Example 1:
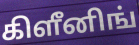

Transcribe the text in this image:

கிளீனிங்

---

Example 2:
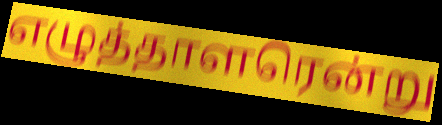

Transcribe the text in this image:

எழுத்தாளரென்று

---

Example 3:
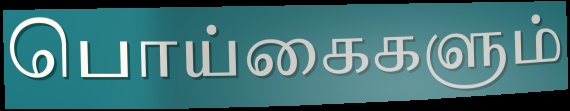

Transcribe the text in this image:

பொய்கைகளும்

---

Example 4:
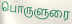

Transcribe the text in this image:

பொருளுரை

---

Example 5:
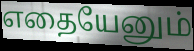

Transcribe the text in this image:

எதையேனும்